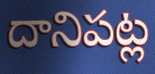
దానిపట్ల